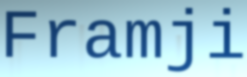
Framji